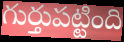
గుర్తుపట్టింది